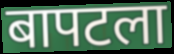
बापटला